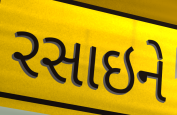
રસાઇને